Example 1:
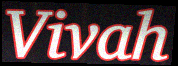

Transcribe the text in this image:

Vivah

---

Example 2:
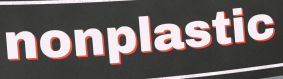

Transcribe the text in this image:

nonplastic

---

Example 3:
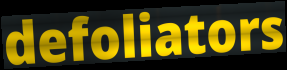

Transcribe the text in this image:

defoliators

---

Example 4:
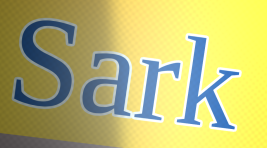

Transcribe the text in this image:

Sark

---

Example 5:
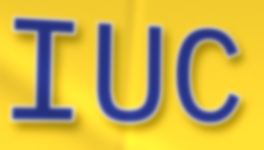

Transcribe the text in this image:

IUC